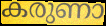
കരുണാ